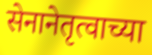
सेनानेतृत्वाच्या